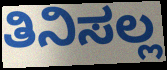
ತಿನಿಸಲ್ಲ